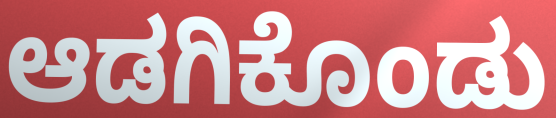
ಆಡಗಿಕೊಂಡು